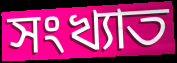
সংখ্যাত